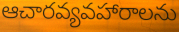
ఆచారవ్యవహారాలను